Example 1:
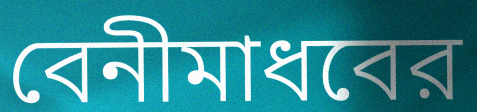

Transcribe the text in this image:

বেনীমাধবের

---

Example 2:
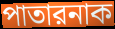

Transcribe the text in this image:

পাতারনাক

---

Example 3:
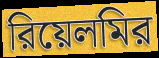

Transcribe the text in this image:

রিয়েলমির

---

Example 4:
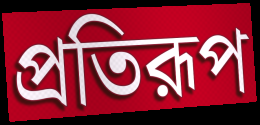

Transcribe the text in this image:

প্রতিরূপ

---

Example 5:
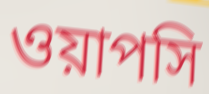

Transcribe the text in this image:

ওয়াপসি